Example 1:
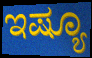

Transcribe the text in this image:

ಇಷ್ಯೂ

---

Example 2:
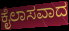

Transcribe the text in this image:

ಕೈಲಾಸವಾದ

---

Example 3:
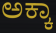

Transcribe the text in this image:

ಅಕ್ಕಾ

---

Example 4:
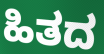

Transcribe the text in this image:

ಹಿತದ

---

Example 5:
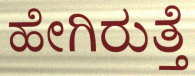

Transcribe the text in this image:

ಹೇಗಿರುತ್ತೆ